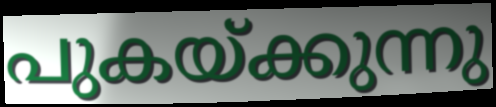
പുകയ്ക്കുന്നു